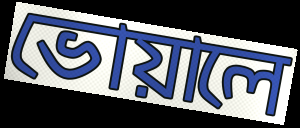
ভোয়ালে